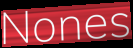
Nones